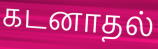
கடனாதல்